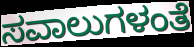
ಸವಾಲುಗಳಂತೆ